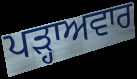
ਪੜ੍ਹਾਅਵਾਰ